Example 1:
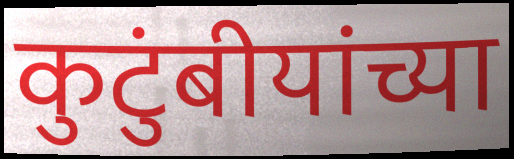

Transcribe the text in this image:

कुटुंबीयांच्या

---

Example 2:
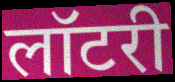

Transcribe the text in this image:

लॉटरी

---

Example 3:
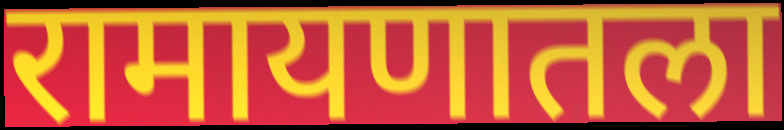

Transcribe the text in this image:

रामायणातला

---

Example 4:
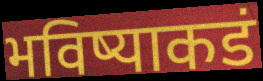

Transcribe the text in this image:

भविष्याकडं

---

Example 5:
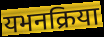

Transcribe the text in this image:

यभनक्रिया